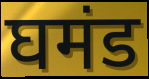
घमंड